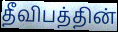
தீவிபத்தின்